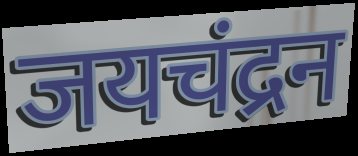
जयचंद्रन